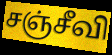
சஞ்சீவி